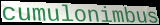
cumulonimbus